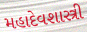
મહાદેવશાસ્ત્રી